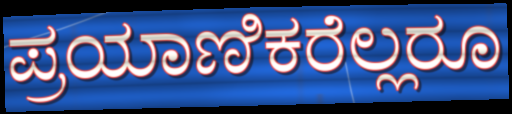
ಪ್ರಯಾಣಿಕರೆಲ್ಲರೂ